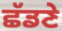
ਛੱਡਣੇ